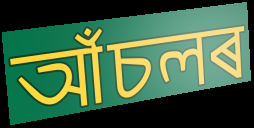
আঁচলৰ